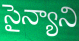
సైన్యాని